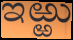
ఇఱ్ఱు